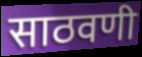
साठवणी